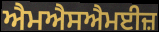
ਐਮਐਸਐਮਈਜ਼